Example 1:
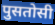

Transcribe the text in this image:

पुसतोसी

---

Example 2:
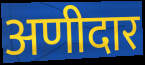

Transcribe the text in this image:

अणीदार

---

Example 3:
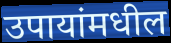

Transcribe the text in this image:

उपायांमधील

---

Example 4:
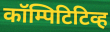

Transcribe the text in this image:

कॉम्पिटिटिव्ह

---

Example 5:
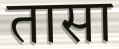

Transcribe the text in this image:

तासा